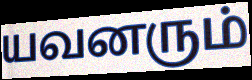
யவனரும்